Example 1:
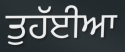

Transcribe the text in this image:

ਤੁਹੱਈਆ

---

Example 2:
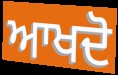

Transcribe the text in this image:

ਆਖਦੋ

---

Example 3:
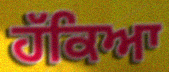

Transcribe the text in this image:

ਹੱਕਿਆ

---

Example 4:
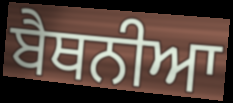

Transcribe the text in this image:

ਬੈਥਨੀਆ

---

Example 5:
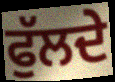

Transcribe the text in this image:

ਫੁੱਲਦੇ